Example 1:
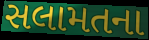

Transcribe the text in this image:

સલામતના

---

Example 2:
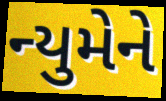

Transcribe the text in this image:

ન્યુમેને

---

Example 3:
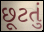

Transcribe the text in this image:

છૂટતું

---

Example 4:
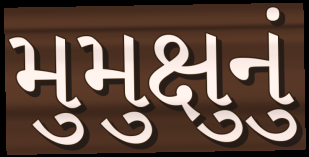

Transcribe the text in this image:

મુમુક્ષુનું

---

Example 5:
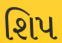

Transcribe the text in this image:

શિપ